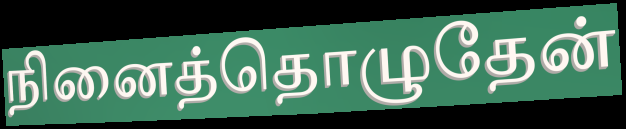
நினைத்தொழுதேன்